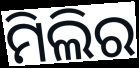
ମିଲିର